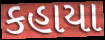
કહાયા